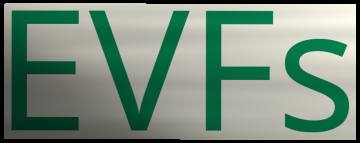
EVFs